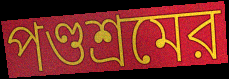
পণ্ডশ্রমের